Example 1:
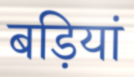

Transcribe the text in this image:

बड़ियां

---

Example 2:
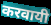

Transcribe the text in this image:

करवायी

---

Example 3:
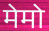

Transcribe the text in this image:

मेमो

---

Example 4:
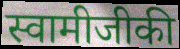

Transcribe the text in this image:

स्वामीजीकी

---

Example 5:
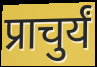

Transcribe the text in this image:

प्राचुर्यं